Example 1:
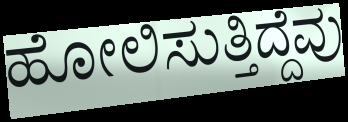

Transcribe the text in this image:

ಹೋಲಿಸುತ್ತಿದ್ದೆವು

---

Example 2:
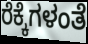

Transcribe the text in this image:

ರೆಕ್ಕೆಗಳಂತೆ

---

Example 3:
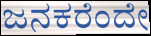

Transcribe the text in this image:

ಜನಕರೆಂದೇ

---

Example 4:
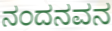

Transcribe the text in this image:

ನಂದನವನ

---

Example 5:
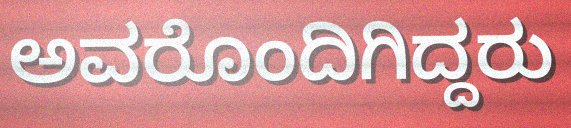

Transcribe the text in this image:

ಅವರೊಂದಿಗಿದ್ದರು